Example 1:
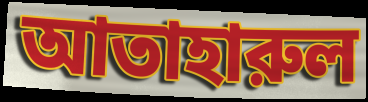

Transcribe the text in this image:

আতাহারুল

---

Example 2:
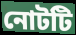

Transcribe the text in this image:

নোটটি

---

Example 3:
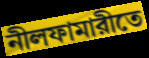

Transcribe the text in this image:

নীলফামারীতে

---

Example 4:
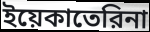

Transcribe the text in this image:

ইয়েকাতেরিনা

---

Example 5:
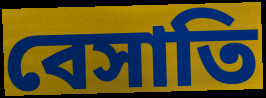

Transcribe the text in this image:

বেসাতি